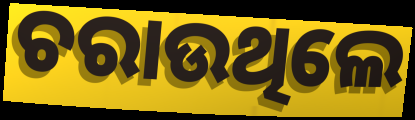
ଚରାଉଥିଲେ